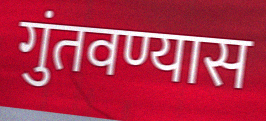
गुंतवण्यास